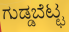
ಗುಡ್ಡಬೆಟ್ಟ